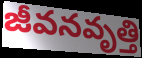
జీవనవృత్తి